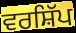
ਵਰਸ਼ਿੱਪ